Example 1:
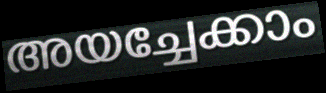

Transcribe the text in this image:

അയച്ചേക്കാം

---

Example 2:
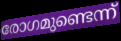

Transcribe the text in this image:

രോഗമുണ്ടെന്ന്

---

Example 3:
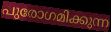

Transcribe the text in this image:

പുരോഗമിക്കുന്ന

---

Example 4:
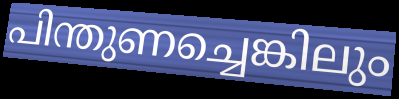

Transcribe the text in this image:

പിന്തുണച്ചെങ്കിലും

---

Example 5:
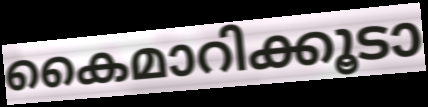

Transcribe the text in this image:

കൈമാറിക്കൂടാ